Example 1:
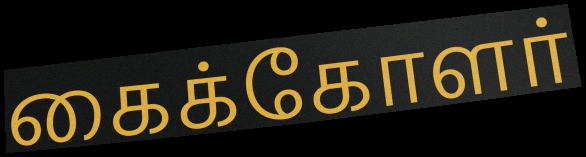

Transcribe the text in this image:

கைக்கோளர்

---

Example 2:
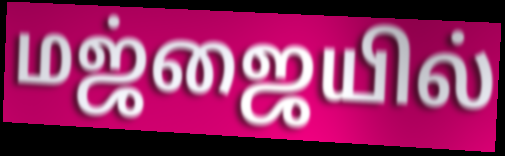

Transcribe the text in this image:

மஜ்ஜையில்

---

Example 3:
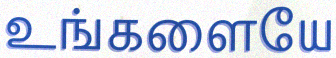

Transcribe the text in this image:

உங்களையே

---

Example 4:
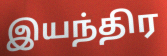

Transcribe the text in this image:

இயந்திர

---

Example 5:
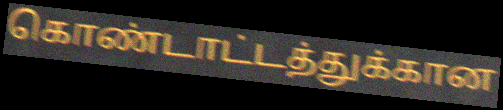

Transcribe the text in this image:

கொண்டாட்டத்துக்கான